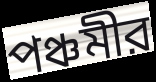
পঞ্চমীর